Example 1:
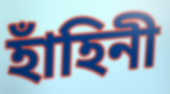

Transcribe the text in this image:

হাঁহিনী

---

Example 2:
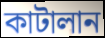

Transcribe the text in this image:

কাটালান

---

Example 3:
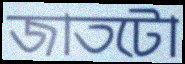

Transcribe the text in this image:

জাতটো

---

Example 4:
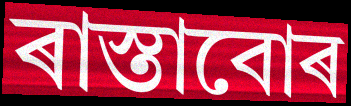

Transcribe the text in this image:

ৰাস্তাবোৰ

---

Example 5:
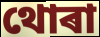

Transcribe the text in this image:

থোৰা